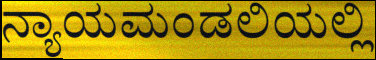
ನ್ಯಾಯಮಂಡಲಿಯಲ್ಲಿ